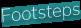
Footsteps